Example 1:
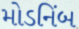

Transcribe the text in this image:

મોડનિંબ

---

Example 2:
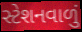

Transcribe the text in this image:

સ્ટેશનવાળું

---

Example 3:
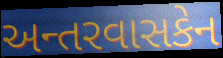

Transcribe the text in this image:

અન્તરવાસકેન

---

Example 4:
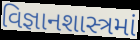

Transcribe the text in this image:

વિજ્ઞાનશાસ્ત્રમાં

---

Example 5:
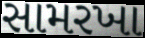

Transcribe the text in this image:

સામરખા